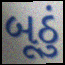
બૂઠું